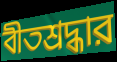
বীতশ্রদ্ধার